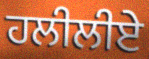
ਹਲੀਲੀਏ